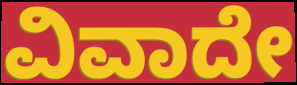
ವಿವಾದೇ